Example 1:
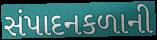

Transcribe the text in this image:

સંપાદનકળાની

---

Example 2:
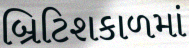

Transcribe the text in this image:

બ્રિટિશકાળમાં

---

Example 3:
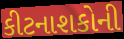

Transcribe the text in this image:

કીટનાશકોની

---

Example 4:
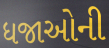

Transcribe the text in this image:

ધજાઓની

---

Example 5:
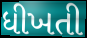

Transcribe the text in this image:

ધીખતી